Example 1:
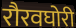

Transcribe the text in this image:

रौरवघोरी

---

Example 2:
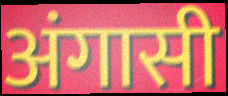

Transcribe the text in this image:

अंगासी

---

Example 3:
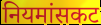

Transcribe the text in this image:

नियमांसकट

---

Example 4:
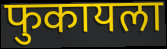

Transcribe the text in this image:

फुकायला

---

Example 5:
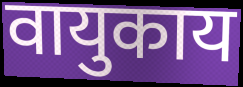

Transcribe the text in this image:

वायुकाय